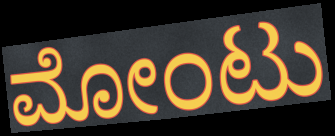
ಮೋಂಟು